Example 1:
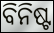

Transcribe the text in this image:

ବିନିଷ୍ଟ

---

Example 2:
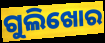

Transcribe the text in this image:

ଗୁଲିଖୋର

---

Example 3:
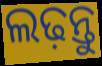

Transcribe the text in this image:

ଲଢ଼ନ୍ତୁ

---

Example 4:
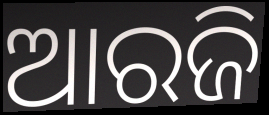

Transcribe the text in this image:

ଆରଜି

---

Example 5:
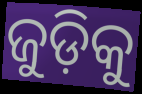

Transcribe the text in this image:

ଜୁଡ଼ିକୁ